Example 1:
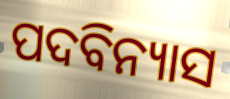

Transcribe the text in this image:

ପଦବିନ୍ୟାସ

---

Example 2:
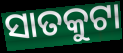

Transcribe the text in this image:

ସାତକୁଟା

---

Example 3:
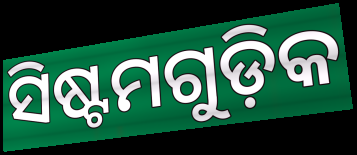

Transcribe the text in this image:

ସିଷ୍ଟମଗୁଡ଼ିକ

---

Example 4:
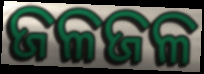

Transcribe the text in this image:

ଜଳଜଳ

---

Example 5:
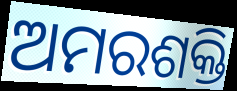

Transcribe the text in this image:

ଅମରଶକ୍ତି